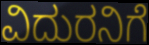
ವಿದುರನಿಗೆ